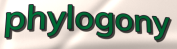
phylogony